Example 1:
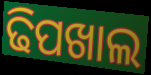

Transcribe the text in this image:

ଢିପଖାଲ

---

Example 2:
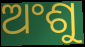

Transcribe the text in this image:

ଅଂଶୁ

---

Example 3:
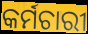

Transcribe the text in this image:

କର୍ମଚାରୀ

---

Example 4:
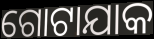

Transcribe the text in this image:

ଗୋଟାଯାକ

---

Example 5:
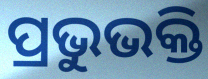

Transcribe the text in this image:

ପ୍ରଭୁଭକ୍ତି